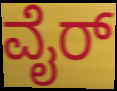
ವೈರ್